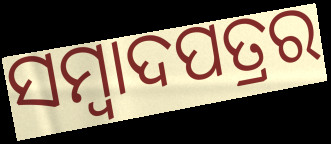
ସମ୍ବାଦପତ୍ରର